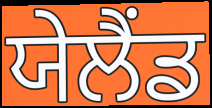
ਯੇਲੈਂਡ